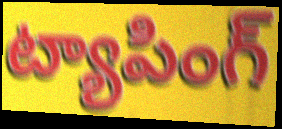
ట్యాపింగ్